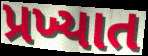
પ્રખ્યાત